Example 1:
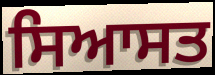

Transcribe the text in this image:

ਸਿਆਸਤ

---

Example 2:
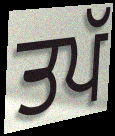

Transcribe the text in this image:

ਤਪੱ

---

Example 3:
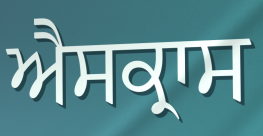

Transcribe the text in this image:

ਐਸਕ੍ਰਾਸ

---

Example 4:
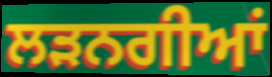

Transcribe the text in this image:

ਲੜਨਗੀਆਂ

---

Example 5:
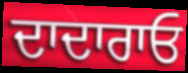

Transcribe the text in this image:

ਦਾਦਾਰਾਓ